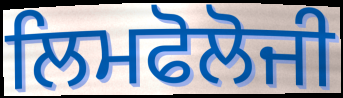
ਲਿਮਫੋਲੋਜੀ